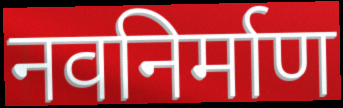
नवनिर्माण